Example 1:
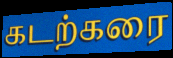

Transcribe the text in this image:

கடற்கரை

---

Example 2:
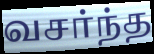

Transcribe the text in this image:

வசர்ந்த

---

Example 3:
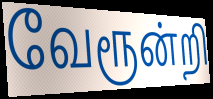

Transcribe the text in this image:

வேரூன்றி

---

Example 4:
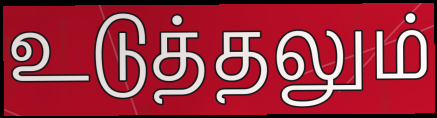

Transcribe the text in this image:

உடுத்தலும்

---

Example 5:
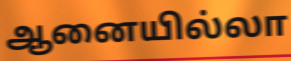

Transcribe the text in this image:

ஆனையில்லா